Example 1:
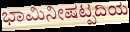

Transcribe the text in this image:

ಭಾಮಿನೀಷಟ್ಪದಿಯ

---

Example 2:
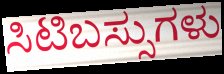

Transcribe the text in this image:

ಸಿಟಿಬಸ್ಸುಗಳು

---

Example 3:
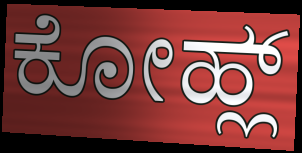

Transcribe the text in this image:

ಕೋಹ್ಲ್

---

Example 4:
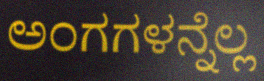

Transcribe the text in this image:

ಅಂಗಗಳನ್ನೆಲ್ಲ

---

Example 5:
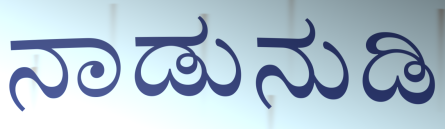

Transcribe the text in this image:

ನಾಡುನುಡಿ